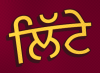
ਲਿੱਟੇ